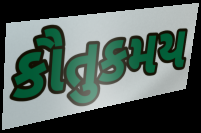
કૌતુકમય